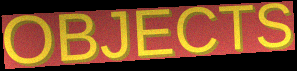
OBJECTS